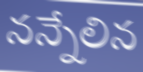
నన్నేలిన